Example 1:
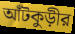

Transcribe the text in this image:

আঁটকুড়ীর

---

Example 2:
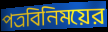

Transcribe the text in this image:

পত্রবিনিময়ের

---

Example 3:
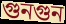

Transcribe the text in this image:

গুনগুন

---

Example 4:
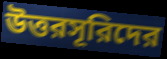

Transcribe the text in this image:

উত্তরসূরিদের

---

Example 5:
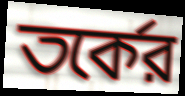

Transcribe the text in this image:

তর্কের